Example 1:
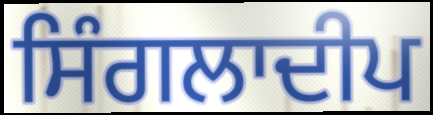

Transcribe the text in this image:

ਸਿੰਗਲਾਦੀਪ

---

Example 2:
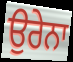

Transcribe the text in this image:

ਉਰੇਨਾ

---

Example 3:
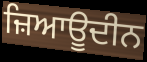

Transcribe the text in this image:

ਜ਼ਿਆਊਦੀਨ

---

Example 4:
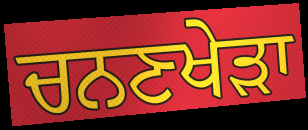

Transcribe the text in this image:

ਚਨਣਖੇੜਾ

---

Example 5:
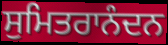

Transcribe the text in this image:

ਸੁਮਿਤਰਾਨੰਦਨ